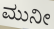
ಮುನೀ